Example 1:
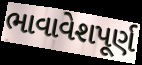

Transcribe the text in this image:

ભાવાવેશપૂર્ણ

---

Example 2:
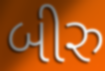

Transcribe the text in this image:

બીરુ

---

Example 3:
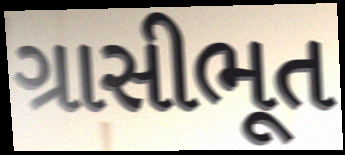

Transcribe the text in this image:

ગ્રાસીભૂત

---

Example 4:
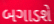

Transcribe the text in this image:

બગાડશે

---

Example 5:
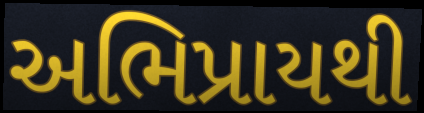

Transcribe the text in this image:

અભિપ્રાયથી